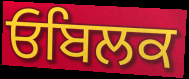
ਓਬਿਲਕ